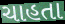
ચાહતા